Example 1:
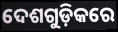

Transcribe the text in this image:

ଦେଶଗୁଡ଼ିକରେ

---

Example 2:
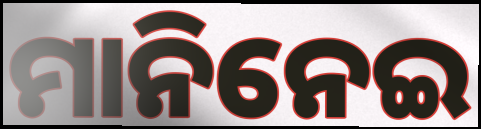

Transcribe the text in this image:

ମାନିନେଇ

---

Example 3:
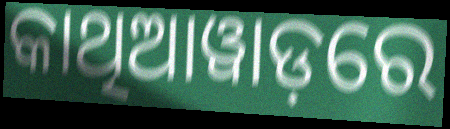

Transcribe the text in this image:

କାଥିଆୱାଡ଼ରେ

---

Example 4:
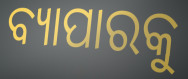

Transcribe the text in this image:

ବ୍ୟାପାରକୁ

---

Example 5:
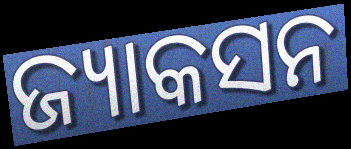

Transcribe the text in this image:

ଜ୍ୟାକସନ